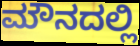
ಮೌನದಲ್ಲಿ